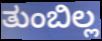
ತುಂಬಿಲ್ಲ